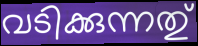
വടിക്കുന്നതു്